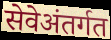
सेवेअंतर्गत